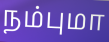
நம்புமா